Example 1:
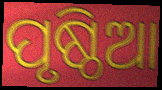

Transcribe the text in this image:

ପୃଷ୍ଠିଆ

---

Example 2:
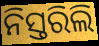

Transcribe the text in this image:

ନିସ୍ତରିଲି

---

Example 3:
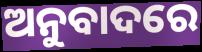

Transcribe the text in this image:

ଅନୁବାଦରେ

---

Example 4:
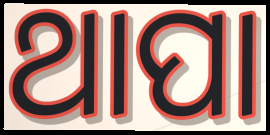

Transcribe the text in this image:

ଥାପା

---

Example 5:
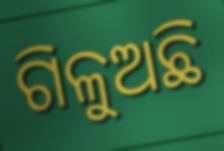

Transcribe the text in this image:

ଗିଳୁଅଛି